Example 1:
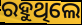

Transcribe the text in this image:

ରହୁଥିଲେ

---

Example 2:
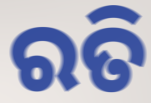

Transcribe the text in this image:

ରତି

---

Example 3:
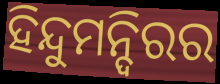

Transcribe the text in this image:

ହିନ୍ଦୁମନ୍ଦିରର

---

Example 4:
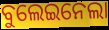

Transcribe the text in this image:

ବୁଲେଇନେଲା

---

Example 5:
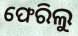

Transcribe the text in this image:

ଫେରିଲୁ